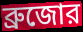
ব্রুজোর